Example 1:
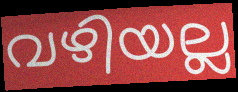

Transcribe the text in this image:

വഴിയല്ല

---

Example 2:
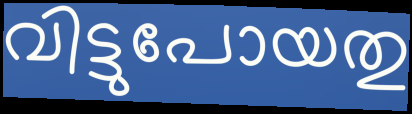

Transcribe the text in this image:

വിട്ടുപോയതു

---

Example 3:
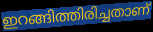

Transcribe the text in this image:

ഇറങ്ങിത്തിരിച്ചതാണ്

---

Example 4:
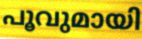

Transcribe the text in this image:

പൂവുമായി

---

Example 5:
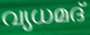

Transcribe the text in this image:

വ്യധമദ്